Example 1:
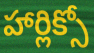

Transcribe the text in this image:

హార్లిక్సో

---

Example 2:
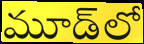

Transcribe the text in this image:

మూడ్‌లో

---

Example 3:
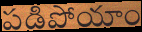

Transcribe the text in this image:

పడిపోయాం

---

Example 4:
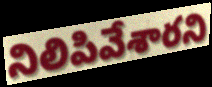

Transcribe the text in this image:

నిలిపివేశారని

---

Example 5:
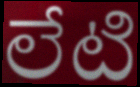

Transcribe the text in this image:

లేటి